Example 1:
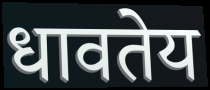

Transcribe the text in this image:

धावतेय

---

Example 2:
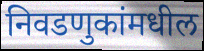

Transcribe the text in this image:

निवडणुकांमधील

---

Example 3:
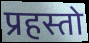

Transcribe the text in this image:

प्रहस्तो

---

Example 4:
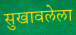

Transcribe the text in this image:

सुखावलेला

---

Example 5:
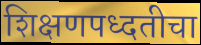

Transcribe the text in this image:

शिक्षणपध्दतीचा